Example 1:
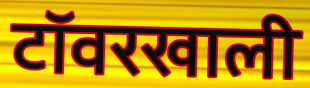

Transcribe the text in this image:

टॉवरखाली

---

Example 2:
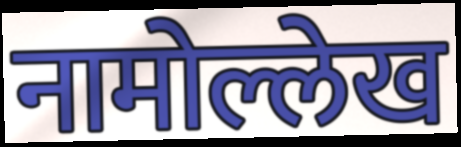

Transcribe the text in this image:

नामोल्लेख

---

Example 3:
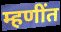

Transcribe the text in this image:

म्हणींत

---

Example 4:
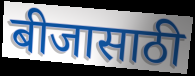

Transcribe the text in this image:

बीजासाठी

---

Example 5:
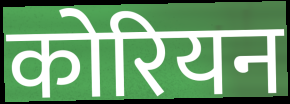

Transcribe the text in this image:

कोरियन